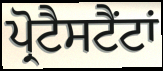
ਪ੍ਰੋਟੈਸਟੈਂਟਾਂ